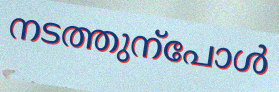
നടത്തുന്പോൾ